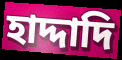
হাদ্দাদি